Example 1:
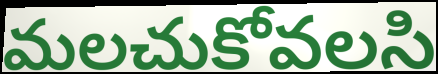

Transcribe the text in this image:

మలచుకోవలసి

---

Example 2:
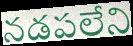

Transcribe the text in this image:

నడపలేని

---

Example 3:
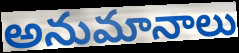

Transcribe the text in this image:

అనుమానాలు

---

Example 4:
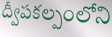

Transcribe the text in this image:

ద్వీపకల్పంలోని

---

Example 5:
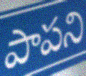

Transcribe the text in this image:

పాపని